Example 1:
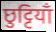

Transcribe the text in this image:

छुट्टियाँ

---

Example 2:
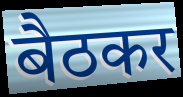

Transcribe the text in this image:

बैठकर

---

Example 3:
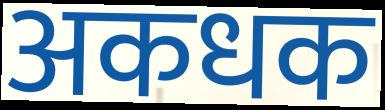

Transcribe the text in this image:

अकधक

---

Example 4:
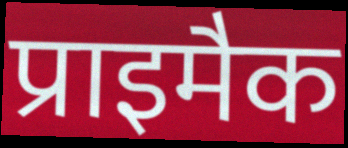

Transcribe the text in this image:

प्राइमैक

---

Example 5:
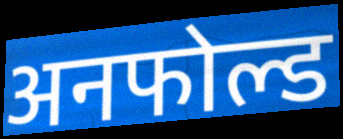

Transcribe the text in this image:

अनफोल्ड